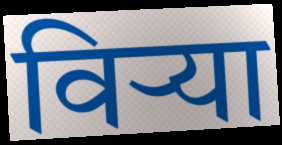
विऱ्या